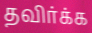
தவிர்க்க